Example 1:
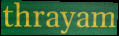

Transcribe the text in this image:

thrayam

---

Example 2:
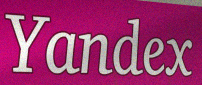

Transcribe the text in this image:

Yandex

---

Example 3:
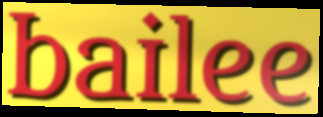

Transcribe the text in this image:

bailee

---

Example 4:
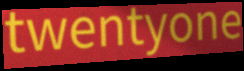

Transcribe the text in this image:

twentyone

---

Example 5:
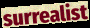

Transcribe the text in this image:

surrealist